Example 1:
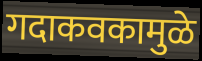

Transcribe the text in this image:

गदाकवकामुळे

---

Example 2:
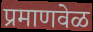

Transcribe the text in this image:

प्रमाणवेळ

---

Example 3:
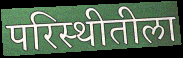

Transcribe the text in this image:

परिस्थीतीला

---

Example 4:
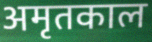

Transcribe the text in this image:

अमृतकाल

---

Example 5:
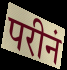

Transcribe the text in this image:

परीनं